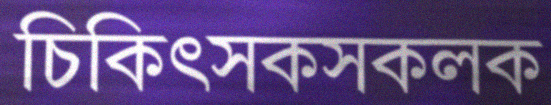
চিকিৎসকসকলক